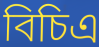
বিচিএ